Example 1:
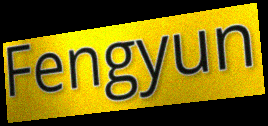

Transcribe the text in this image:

Fengyun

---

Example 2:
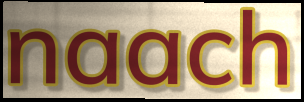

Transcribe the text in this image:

naach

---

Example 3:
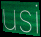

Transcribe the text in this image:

usi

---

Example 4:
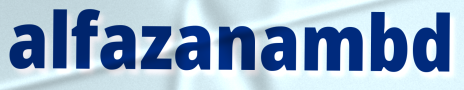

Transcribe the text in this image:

alfazanambd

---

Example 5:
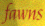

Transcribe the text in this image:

fawns